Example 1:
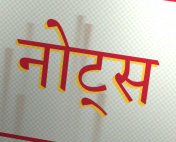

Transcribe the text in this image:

नोट्‌स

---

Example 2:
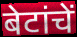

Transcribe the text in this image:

बेटांचें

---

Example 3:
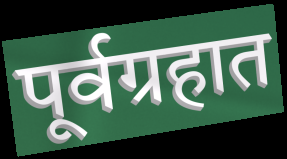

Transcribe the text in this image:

पूर्वग्रहात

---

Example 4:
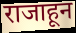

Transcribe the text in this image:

राजाहून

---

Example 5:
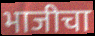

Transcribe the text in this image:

भाजीचा